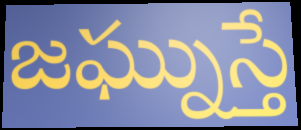
జఘ్నుస్తే